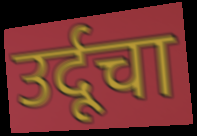
उर्दूचा